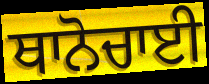
ਥਾਨੋਚਾਈ